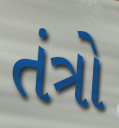
તંત્રો